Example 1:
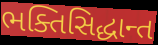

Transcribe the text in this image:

ભક્તિસિદ્ધાન્ત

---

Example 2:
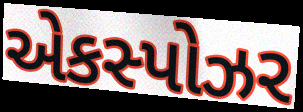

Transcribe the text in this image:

એકસ્પોઝર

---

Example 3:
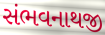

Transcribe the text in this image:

સંભવનાથજી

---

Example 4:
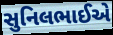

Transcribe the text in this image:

સુનિલભાઈએ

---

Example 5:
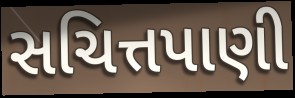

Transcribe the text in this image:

સચિત્તપાણી